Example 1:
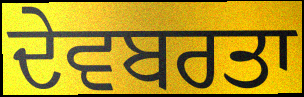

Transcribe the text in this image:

ਦੇਵਬਰਤਾ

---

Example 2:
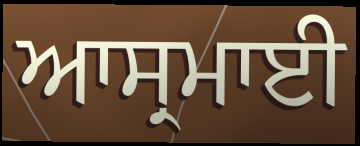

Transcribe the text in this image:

ਆਸ੍ਰਮਾਈ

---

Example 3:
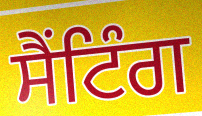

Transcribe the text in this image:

ਸੈਂਟਿੰਗ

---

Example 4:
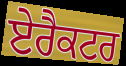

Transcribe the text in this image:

ਏਰੈਕਟਰ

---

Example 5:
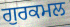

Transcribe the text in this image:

ਗੁਰਕਮਲ